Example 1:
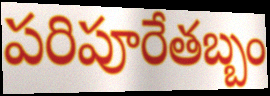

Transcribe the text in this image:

పరిపూరేతబ్బం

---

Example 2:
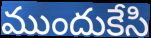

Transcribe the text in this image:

ముందుకేసి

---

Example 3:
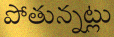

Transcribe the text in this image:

పోతున్నట్లు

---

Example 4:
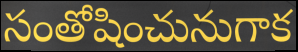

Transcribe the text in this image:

సంతోషించునుగాక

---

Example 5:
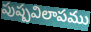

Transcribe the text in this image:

పుష్పవిలాపము